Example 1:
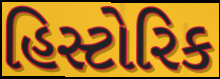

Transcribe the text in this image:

હિસ્ટોરિક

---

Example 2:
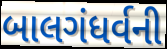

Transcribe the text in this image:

બાલગંધર્વની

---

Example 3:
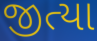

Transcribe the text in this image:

જીત્યા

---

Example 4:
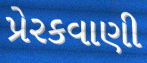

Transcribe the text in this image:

પ્રેરકવાણી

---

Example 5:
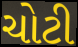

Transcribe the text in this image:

ચોટી